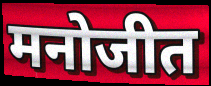
मनोजीत